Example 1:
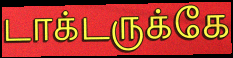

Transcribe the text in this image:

டாக்டருக்கே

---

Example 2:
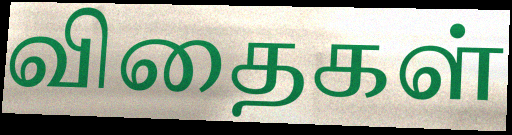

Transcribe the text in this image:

விதைகள்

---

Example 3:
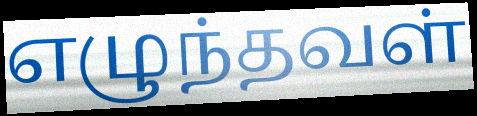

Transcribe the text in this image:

எழுந்தவள்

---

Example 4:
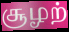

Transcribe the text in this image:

சூழற்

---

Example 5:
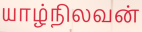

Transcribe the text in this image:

யாழ்நிலவன்